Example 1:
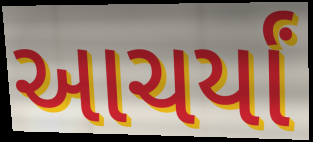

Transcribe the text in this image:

આચર્યાં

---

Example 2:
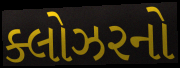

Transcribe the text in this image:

ક્લોઝરનો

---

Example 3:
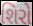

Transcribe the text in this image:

શિરો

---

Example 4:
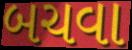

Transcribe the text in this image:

બચવા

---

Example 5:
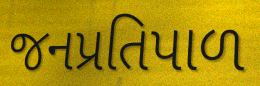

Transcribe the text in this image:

જનપ્રતિપાળ